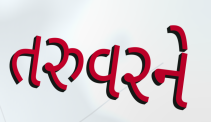
તરુવરને